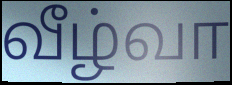
வீழ்வா